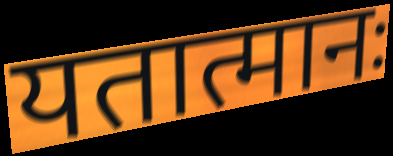
यतात्मानः